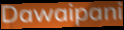
Dawaipani